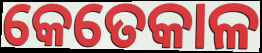
କେତେକାଳ